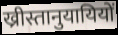
ख्रीस्तानुयायियों